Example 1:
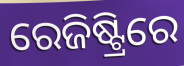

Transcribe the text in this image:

ରେଜିଷ୍ଟ୍ରିରେ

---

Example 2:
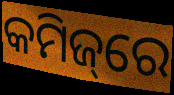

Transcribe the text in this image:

କମିଜ୍‌ରେ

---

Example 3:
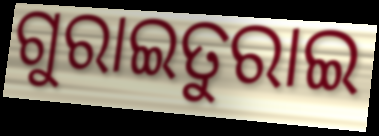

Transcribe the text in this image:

ଗୁରାଇତୁରାଇ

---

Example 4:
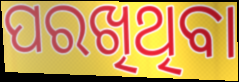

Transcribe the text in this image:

ପରଖିଥିବା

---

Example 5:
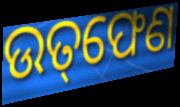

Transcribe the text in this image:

ଉତ୍‌ଫେଣ